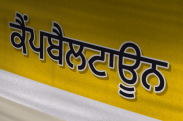
ਕੈਂਪਬੈਲਟਾਊਨ